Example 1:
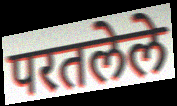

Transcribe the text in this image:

परतलेले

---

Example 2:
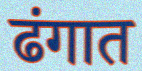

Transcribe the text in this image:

ढंगात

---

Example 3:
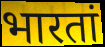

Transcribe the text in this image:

भारतां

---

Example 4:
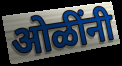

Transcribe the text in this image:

ओळींनी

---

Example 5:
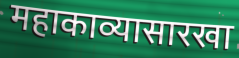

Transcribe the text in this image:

महाकाव्यासारखा